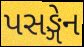
પસઙ્ગેન